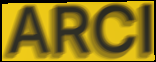
ARCI